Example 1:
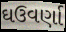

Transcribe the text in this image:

ઘઉવર્ણા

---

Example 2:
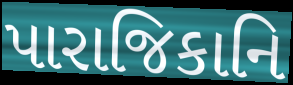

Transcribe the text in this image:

પારાજિકાનિ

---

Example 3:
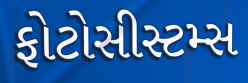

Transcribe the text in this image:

ફોટોસીસ્ટમ્સ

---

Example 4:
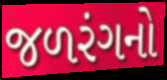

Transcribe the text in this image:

જળરંગનો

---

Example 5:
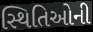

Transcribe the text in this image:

સ્થિતિઓની